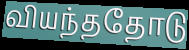
வியந்ததோடு